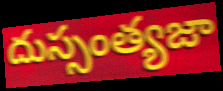
దుస్సంత్యజా